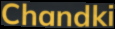
Chandki